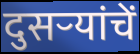
दुसऱ्यांचें